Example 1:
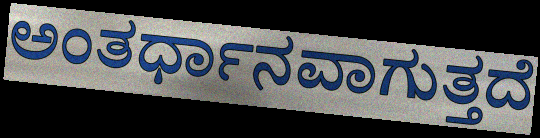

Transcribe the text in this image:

ಅಂತರ್ಧಾನವಾಗುತ್ತದೆ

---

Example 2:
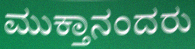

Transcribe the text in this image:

ಮುಕ್ತಾನಂದರು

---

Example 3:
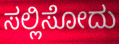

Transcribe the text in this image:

ಸಲ್ಲಿಸೋದು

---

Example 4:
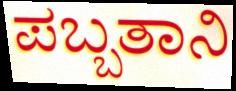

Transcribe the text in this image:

ಪಬ್ಬತಾನಿ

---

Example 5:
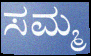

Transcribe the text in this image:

ಸಮ್ಮ